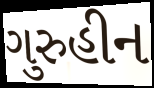
ગુરુહીન